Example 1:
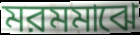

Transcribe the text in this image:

মরমমাঝে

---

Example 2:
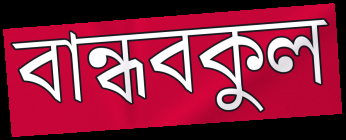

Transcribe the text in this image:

বান্ধবকুল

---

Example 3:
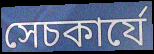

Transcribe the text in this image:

সেচকার্যে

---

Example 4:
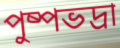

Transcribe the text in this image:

পুষ্পভদ্রা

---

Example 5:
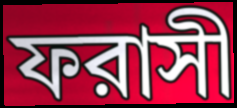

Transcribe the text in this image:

ফরাসী